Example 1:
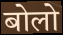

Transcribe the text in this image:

बोलो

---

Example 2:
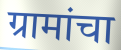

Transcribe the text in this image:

ग्रामांचा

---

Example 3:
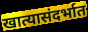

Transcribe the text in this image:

खात्यासंदर्भात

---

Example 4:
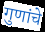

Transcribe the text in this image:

गुणांचे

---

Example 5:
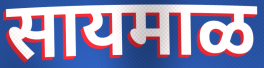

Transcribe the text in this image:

सायमाळ